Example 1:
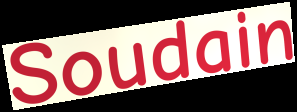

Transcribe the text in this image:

Soudain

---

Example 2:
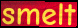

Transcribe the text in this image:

smelt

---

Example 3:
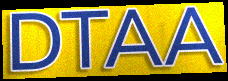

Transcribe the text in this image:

DTAA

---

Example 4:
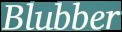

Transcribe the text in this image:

Blubber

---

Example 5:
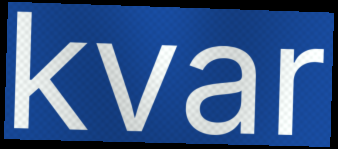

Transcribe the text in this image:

kvar